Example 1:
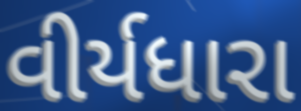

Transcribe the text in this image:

વીર્યધારા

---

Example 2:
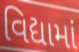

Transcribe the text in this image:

વિદ્યામાં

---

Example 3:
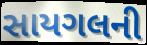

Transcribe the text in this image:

સાયગલની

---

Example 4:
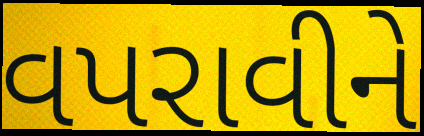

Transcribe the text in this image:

વપરાવીને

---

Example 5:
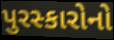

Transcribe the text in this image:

પુરસ્કારોનો